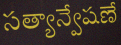
సత్యాన్వేషణే